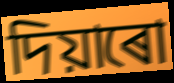
দিয়াৰো